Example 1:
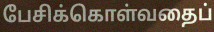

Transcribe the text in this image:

பேசிக்கொள்வதைப்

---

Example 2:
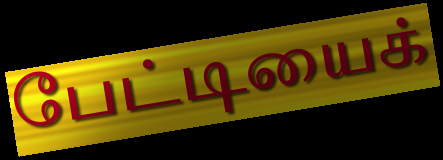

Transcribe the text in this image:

பேட்டியைக்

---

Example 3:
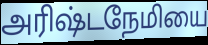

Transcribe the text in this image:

அரிஷ்டநேமியை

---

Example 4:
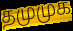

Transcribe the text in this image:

தமுமுக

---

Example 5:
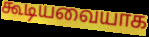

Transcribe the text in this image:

கூடியவையாக